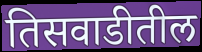
तिसवाडीतील